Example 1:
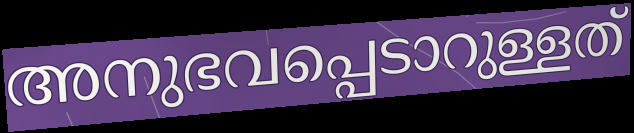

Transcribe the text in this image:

അനുഭവപ്പെടാറുള്ളത്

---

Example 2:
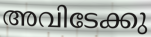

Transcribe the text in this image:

അവിടേക്കു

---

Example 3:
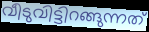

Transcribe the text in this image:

വീടുവിട്ടിറങ്ങുന്നത്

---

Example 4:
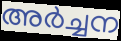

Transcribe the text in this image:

അർച്ചന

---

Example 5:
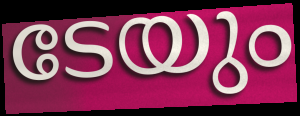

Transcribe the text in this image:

ടേയും